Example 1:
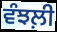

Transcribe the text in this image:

ਵੰਝਲ਼ੀ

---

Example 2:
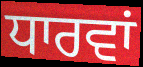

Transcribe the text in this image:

ਧਾਰਵਾਂ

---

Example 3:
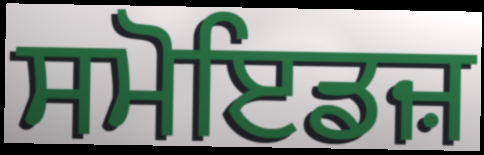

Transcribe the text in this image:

ਸਮੋਇਡਜ਼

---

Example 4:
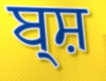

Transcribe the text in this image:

ਬ੍ਸ਼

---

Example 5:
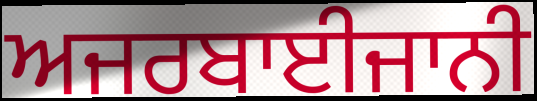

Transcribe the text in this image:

ਅਜਰਬਾਈਜਾਨੀ